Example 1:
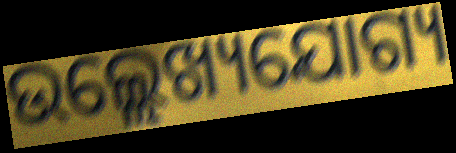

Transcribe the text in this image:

ଉଲ୍ଲେଖ୍ୟଯୋଗ୍ୟ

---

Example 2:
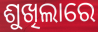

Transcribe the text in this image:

ଶୁଖିଲାରେ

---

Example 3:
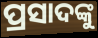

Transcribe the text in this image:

ପ୍ରସାଦଙ୍କୁ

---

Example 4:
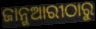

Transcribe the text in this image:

ଜାନୁଆରୀଠାରୁ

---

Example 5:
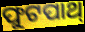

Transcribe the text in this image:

ଫୁଟପାଥ୍